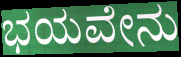
ಭಯವೇನು